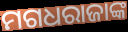
ମଗଧରାଜାଙ୍କ